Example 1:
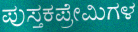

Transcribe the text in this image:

ಪುಸ್ತಕಪ್ರೇಮಿಗಳ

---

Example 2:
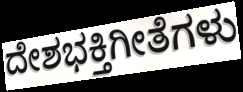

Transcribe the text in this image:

ದೇಶಭಕ್ತಿಗೀತೆಗಳು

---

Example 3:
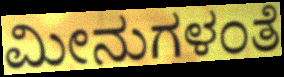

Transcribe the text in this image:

ಮೀನುಗಳಂತೆ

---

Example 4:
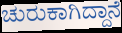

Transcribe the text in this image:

ಚುರುಕಾಗಿದ್ದಾನೆ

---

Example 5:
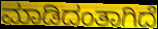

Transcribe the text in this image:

ಮಾಡಿದಂತಾಗಿದೆ